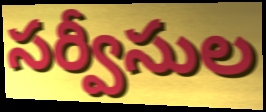
సర్వీసుల